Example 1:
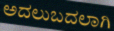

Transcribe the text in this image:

ಅದಲುಬದಲಾಗಿ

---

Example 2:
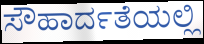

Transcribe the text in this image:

ಸೌಹಾರ್ದತೆಯಲ್ಲಿ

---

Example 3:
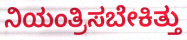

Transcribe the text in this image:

ನಿಯಂತ್ರಿಸಬೇಕಿತ್ತು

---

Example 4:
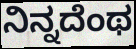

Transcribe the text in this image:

ನಿನ್ನದೆಂಥ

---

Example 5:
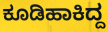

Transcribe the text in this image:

ಕೂಡಿಹಾಕಿದ್ದ